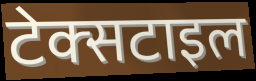
टेक्‍सटाइल